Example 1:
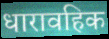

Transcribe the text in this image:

धारावहिक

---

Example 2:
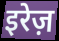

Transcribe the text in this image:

इरेज़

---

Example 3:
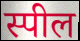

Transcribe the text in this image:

स्पील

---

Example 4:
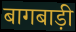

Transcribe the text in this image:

बागबाड़ी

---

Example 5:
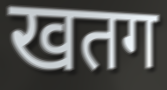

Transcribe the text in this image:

खतग